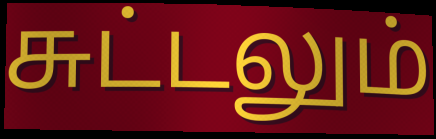
சுட்டலும்